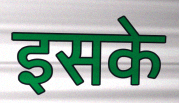
इसके